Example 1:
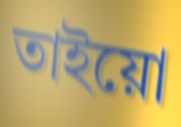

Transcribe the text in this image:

তাইয়ো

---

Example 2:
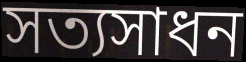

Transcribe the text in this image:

সত্যসাধন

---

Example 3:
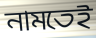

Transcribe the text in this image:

নামতেই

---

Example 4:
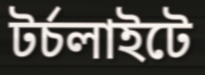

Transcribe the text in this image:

টর্চলাইটে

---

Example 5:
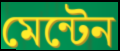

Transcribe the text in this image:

মেন্টেন